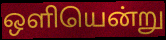
ஒளியென்று